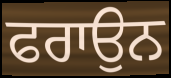
ਫਰਾਉਨ